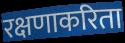
रक्षणाकरिता